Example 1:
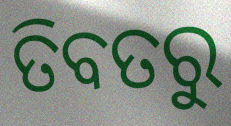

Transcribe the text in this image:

ତିବତରୁ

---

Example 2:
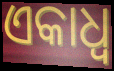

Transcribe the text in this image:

ଏକାଧ୍ଵ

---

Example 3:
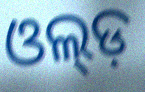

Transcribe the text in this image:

ଓଲ୍ଡ଼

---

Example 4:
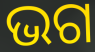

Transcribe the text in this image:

ଭଗ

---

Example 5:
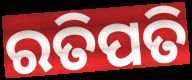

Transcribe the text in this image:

ରତିପତି